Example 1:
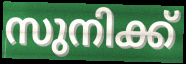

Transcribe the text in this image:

സുനിക്ക്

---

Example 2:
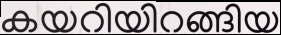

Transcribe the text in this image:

കയറിയിറങ്ങിയ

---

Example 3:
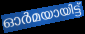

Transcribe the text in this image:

ഓർമയായിട്ട്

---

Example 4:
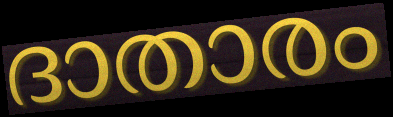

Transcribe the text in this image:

ദാതാരം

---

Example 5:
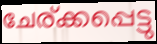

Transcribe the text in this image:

ചേര്ക്കപ്പെട്ടു